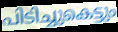
പിടിച്ചുകെട്ടും